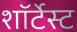
शॉर्टेस्ट